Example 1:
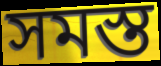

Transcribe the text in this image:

সমস্ত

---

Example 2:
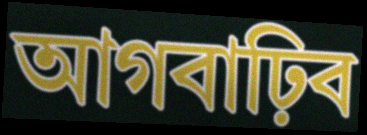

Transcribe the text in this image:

আগবাঢ়িব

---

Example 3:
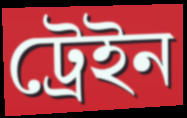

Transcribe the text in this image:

ট্ৰেইন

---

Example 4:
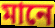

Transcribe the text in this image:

মানে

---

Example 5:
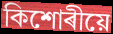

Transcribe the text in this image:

কিশোৰীয়ে